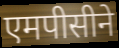
एमपीसीने